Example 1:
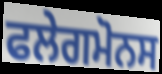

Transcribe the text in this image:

ਫਲੇਗਮੋਨਸ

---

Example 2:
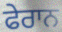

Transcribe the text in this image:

ਫੇਰਾਨ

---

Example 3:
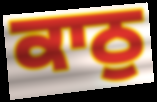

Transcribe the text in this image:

ਕਾਠੁ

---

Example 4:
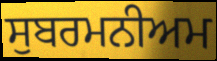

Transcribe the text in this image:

ਸੁਬਰਮਨੀਅਮ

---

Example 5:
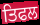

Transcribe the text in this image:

ਤਿਫਲ